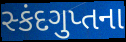
સ્કંદગુપ્તના